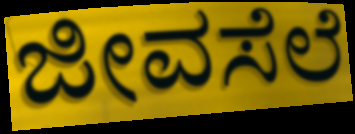
ಜೀವಸೆಲೆ